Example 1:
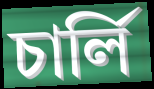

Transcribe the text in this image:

চাৰ্লি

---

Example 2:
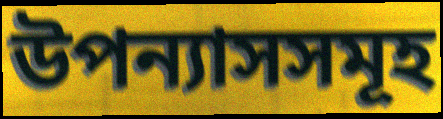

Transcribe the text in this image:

উপন্যাসসমূহ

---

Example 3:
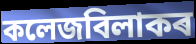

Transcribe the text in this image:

কলেজবিলাকৰ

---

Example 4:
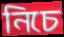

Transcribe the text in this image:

নিচে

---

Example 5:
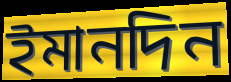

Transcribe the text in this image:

ইমানদিন